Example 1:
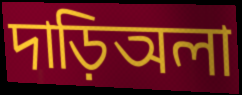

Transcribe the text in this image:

দাড়িঅলা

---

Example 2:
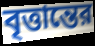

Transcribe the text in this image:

বৃত্তান্তের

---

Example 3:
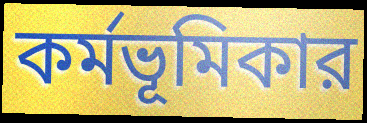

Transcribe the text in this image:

কর্মভূমিকার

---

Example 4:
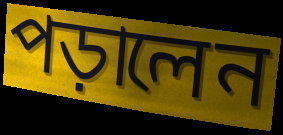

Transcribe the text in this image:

পড়ালেন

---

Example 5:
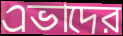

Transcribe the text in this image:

এভাদের